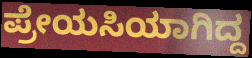
ಪ್ರೇಯಸಿಯಾಗಿದ್ದ